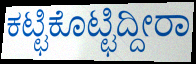
ಕಟ್ಟಿಕೊಟ್ಟಿದ್ದೀರಾ